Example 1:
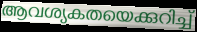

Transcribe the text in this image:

ആവശ്യകതയെക്കുറിച്ച്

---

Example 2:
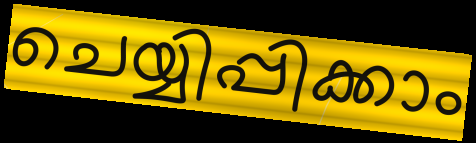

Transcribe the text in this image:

ചെയ്യിപ്പിക്കാം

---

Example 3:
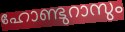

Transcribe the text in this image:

ഹോണ്ടുറാസും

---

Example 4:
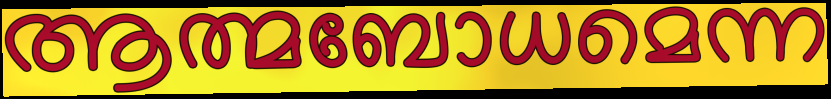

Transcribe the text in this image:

ആത്മബോധമെന്ന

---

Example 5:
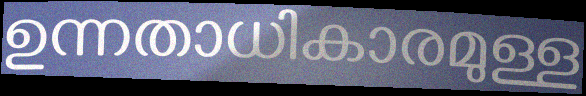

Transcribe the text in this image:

ഉന്നതാധികാരമുള്ള